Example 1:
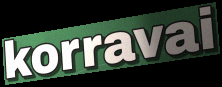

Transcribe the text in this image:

korravai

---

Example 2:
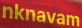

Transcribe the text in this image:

nknavam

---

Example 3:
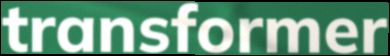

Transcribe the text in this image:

transformer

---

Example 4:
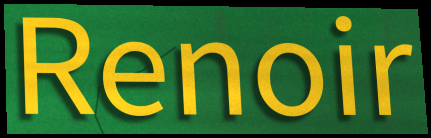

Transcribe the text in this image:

Renoir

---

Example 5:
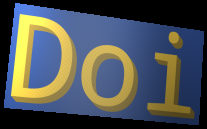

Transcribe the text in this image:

Doi